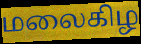
மலைகிழ